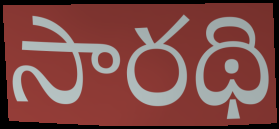
సారథి